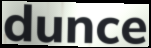
dunce